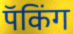
पॅकिंग